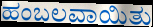
ಹಂಬಲವಾಯಿತು